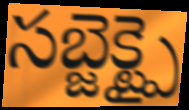
సబ్జెక్ట్పై